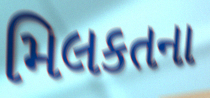
મિલકતના